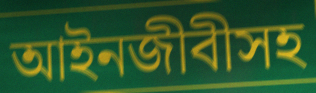
আইনজীবীসহ